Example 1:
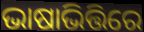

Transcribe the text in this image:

ଭାଷାଭିତ୍ତିରେ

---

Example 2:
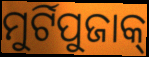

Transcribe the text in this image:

ମୁର୍ଟିପୁଜାକ୍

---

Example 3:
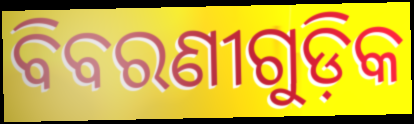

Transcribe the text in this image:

ବିବରଣୀଗୁଡ଼ିକ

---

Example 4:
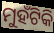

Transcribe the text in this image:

ମୁହଁଟିକି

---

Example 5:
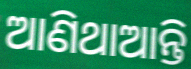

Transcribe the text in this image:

ଆଣିଥାଆନ୍ତି